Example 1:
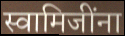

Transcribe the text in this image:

स्वामिजींना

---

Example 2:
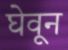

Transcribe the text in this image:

घेवून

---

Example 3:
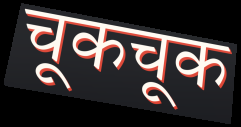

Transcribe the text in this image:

चूकचूक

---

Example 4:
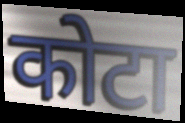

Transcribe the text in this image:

कोटा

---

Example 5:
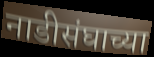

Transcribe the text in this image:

नाडीसंघाच्या